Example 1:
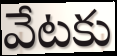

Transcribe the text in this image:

వేటకు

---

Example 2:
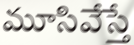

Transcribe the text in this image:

మూసివేస్తే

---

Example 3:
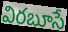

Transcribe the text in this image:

విరబూసే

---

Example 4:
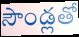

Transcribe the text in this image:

సౌండ్లతో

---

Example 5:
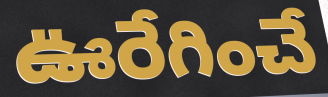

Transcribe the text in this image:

ఊరేగించే